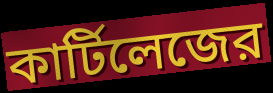
কার্টিলেজের